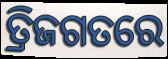
ତ୍ରିଜଗତରେ